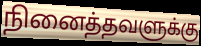
நினைத்தவளுக்கு